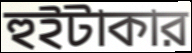
হুইটাকার